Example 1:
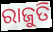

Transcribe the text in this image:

ରାଜୁତି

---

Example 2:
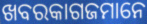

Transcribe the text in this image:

ଖବରକାଗଜମାନେ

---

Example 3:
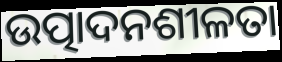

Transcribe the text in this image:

ଉତ୍ପାଦନଶୀଳତା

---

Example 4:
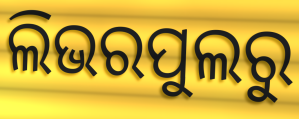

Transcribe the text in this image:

ଲିଭରପୁଲରୁ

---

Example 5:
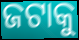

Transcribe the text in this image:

ଜଟାକୁ